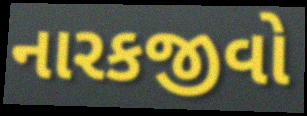
નારકજીવો